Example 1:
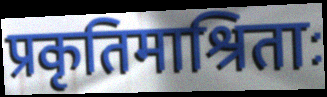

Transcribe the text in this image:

प्रकृतिमाश्रिताः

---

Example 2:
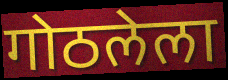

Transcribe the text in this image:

गोठलेला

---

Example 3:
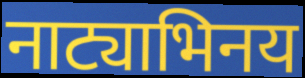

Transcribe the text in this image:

नाट्याभिनय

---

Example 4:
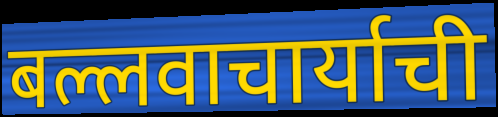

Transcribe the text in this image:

बल्लवाचार्याची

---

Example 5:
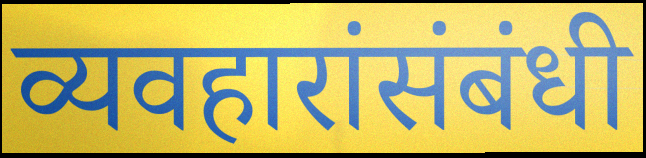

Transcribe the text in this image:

व्यवहारांसंबंधी